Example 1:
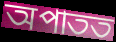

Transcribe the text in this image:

অপাতত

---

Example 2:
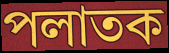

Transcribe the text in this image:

পলাতক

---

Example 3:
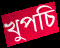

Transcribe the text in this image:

খুপচি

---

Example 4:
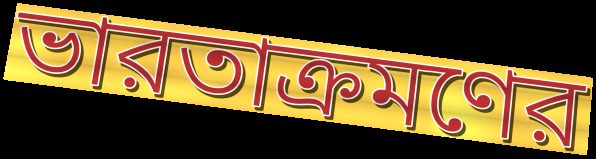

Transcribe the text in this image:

ভারতাক্রমণের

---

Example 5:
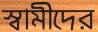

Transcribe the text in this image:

স্বামীদের